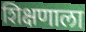
शिक्षणाला